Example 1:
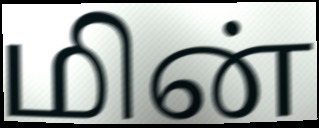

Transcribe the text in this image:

மின்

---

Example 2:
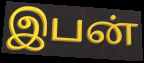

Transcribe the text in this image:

இபன்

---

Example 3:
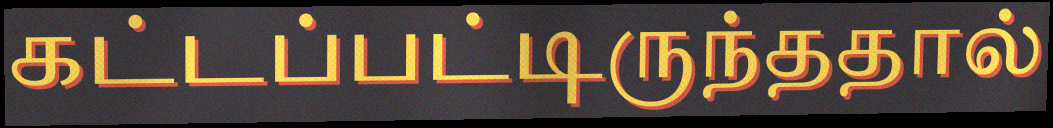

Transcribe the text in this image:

கட்டப்பட்டிருந்ததால்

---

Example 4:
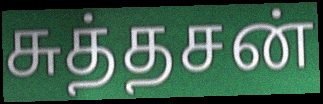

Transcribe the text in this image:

சுத்தசன்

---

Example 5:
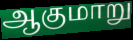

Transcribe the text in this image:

ஆகுமாறு